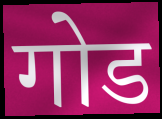
गोड